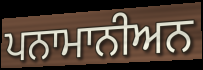
ਪਨਾਮਾਨੀਅਨ